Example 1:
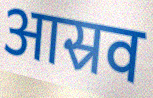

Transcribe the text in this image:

आस्रव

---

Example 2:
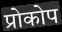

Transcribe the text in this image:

प्रोकोप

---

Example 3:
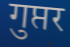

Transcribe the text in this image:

गुप्तर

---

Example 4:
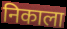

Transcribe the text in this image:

निकाला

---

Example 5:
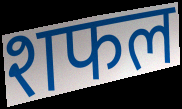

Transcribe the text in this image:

शफल